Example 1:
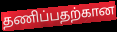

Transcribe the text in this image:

தணிப்பதற்கான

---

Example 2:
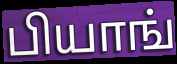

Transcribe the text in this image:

பியாங்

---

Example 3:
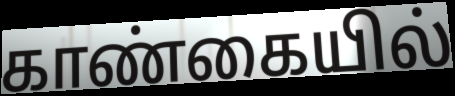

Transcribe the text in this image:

காண்கையில்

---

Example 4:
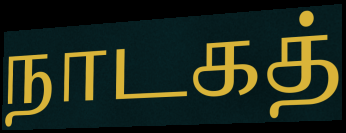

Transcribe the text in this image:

நாடகத்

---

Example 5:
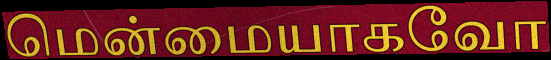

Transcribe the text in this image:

மென்மையாகவோ